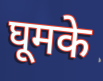
घूमके